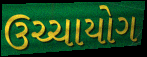
ઉચ્ચાયોગ